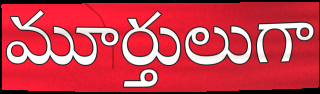
మూర్తులుగా